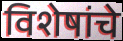
विशेषांचे